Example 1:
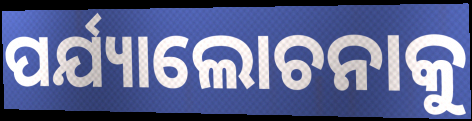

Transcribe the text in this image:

ପର୍ଯ୍ୟାଲୋଚନାକୁ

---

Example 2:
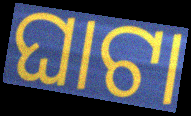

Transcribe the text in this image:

ଘାଟା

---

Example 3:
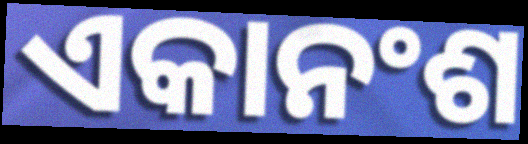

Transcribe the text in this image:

ଏକାନଂଶ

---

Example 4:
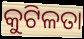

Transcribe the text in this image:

କୁଟିଳତା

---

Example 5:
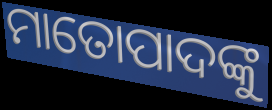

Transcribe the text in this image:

ମାତୋପାଦଙ୍କୁ